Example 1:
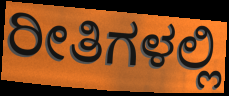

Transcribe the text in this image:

ರೀತಿಗಳಲ್ಲಿ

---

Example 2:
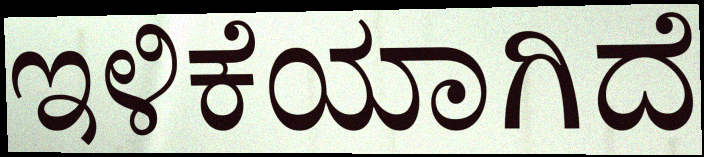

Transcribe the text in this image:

ಇಳಿಕೆಯಾಗಿದೆ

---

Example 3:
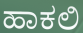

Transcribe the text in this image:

ಹಾಕಲಿ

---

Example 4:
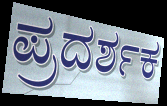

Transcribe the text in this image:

ಪ್ರದರ್ಶಕ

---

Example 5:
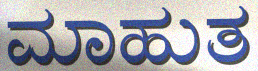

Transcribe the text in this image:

ಮಾಹುತ